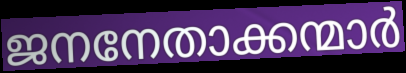
ജനനേതാക്കന്മാർ